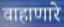
वाहाणारे